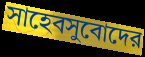
সাহেবসুবোদের